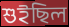
শুইছিল